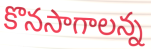
కొనసాగాలన్న